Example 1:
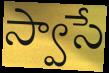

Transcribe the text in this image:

స్వాసే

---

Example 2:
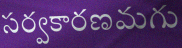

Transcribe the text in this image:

సర్వకారణమగు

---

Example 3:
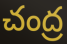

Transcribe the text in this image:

చంద్ర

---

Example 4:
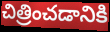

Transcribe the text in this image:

చిత్రించడానికి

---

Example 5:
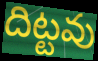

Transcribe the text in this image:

దిట్టవు